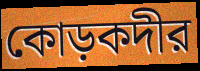
কোড়কদীর